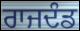
ਰਾਜਦੰਡ